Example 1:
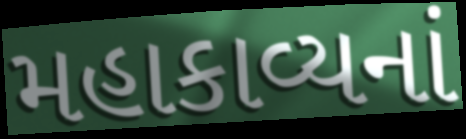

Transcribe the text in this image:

મહાકાવ્યનાં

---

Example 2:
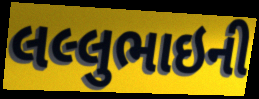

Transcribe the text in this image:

લલ્લુભાઇની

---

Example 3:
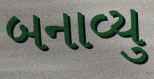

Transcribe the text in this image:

બનાવ્યુ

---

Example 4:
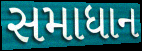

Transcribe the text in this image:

સમાધાન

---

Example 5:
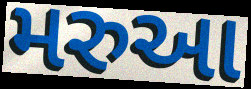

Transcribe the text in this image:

મરુઆ